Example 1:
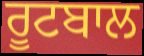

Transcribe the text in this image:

ਰੂਟਬਾਲ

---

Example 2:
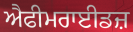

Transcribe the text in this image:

ਐਫੀਮਰਾਈਡਜ਼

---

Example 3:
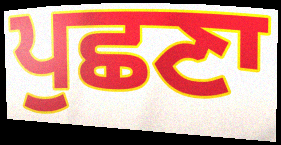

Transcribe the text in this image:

ਪੁਛਣਾ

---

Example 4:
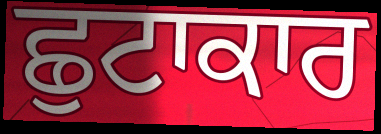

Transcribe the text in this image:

ਛੁਟਾਕਾਰ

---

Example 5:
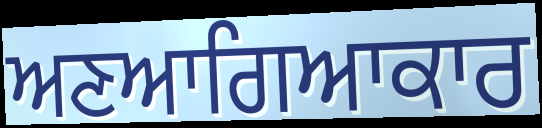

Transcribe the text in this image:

ਅਣਆਗਿਆਕਾਰ